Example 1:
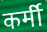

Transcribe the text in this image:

कर्मी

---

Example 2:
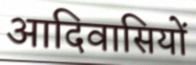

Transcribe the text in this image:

आदिवासियों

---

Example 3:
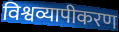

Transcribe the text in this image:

विश्वव्यापीकरण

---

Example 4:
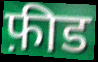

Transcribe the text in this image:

फ़ीड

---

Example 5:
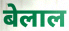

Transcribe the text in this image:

बेलाल